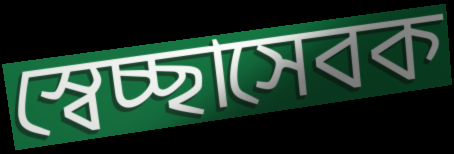
স্বেচ্ছাসেবক